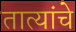
तात्यांचे